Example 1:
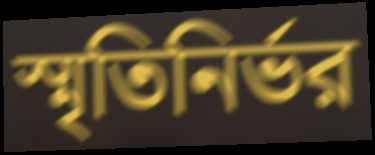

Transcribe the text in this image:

স্মৃতিনির্ভর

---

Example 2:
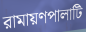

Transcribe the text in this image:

রামায়ণপালাটি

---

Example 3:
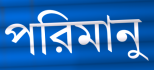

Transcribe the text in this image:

পরিমানু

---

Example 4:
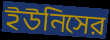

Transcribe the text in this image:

ইউনিসের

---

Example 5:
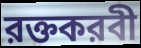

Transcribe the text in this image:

রক্তকরবী